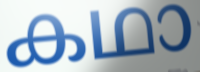
കഥാ